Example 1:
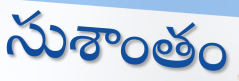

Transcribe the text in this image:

సుశాంతం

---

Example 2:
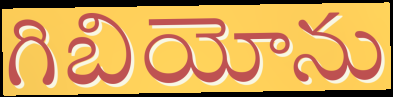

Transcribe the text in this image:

గిబియోను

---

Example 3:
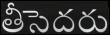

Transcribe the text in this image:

తీసెదరు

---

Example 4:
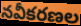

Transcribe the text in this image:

నవీకరణల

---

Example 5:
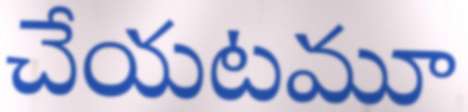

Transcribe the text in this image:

చేయటమూ